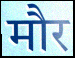
मौर